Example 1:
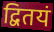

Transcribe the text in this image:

द्वितयं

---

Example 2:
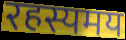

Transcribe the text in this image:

रहस्यमय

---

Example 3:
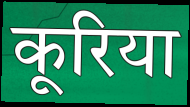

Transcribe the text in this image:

कूरिया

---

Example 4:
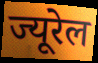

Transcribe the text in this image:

ज्यूरेल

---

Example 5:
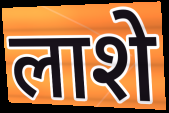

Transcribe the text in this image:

लाशे